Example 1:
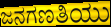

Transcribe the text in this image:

ಜನಗಣತಿಯು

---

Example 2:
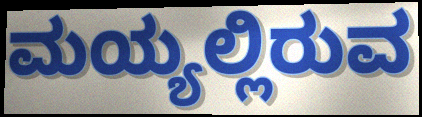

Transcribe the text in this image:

ಮಯ್ಯಲ್ಲಿರುವ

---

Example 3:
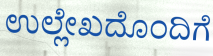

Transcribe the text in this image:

ಉಲ್ಲೇಖದೊಂದಿಗೆ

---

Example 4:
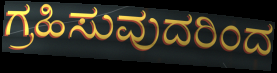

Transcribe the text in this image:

ಗ್ರಹಿಸುವುದರಿಂದ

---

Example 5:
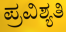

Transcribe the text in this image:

ಪ್ರವಿಶ್ಯತಿ